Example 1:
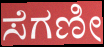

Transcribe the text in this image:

ಸೆಗಣೀ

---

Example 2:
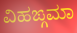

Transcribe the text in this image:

ವಿಹಙ್ಗಮಾ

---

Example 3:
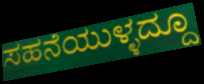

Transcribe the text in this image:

ಸಹನೆಯುಳ್ಳದ್ದೂ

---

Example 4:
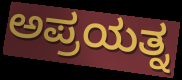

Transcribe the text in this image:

ಅಪ್ರಯತ್ನ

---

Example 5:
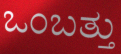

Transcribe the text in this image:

ಒಂಬತ್ತು